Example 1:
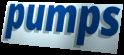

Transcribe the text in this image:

pumps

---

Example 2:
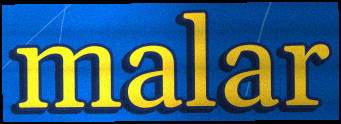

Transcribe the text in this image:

malar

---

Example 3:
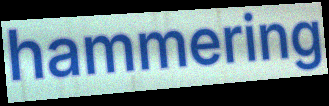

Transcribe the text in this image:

hammering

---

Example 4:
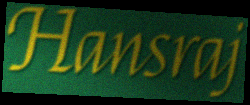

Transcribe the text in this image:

Hansraj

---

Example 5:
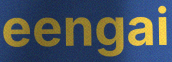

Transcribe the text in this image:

eengai